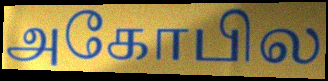
அகோபில